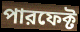
পারফেক্ট